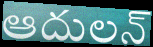
ఆదులన్